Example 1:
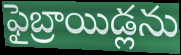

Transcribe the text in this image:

ఫైబ్రాయిడ్లను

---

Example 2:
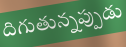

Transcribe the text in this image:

దిగుతున్నప్పుడు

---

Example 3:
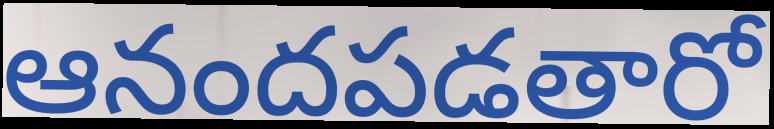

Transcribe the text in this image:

ఆనందపడతారో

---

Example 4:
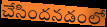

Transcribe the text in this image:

చేసిందనడంలో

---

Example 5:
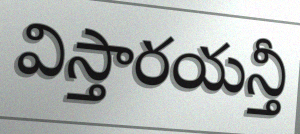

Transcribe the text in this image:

విస్తారయన్తీ